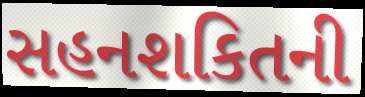
સહનશકિતની